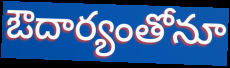
ఔదార్యంతోనూ